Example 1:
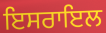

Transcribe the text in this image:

ਇਸਰਾਇਲ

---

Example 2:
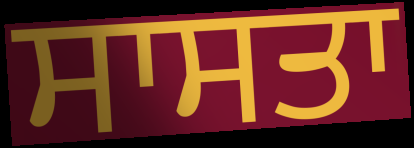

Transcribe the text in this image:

ਸਾਸਤਾ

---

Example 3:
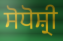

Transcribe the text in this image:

ਸੋਧੋਸ਼੍ਰੀ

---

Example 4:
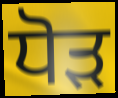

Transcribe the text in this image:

ਧੋੜ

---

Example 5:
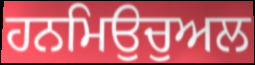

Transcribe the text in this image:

ਹਨਮਿਉਚੁਅਲ